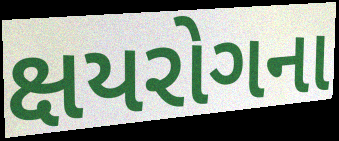
ક્ષયરોગના